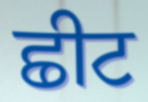
ਛੀਟ